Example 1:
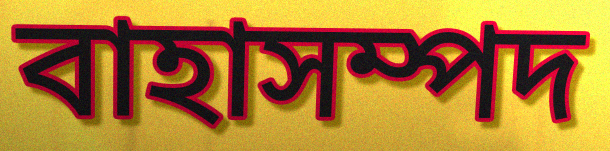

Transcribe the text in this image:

বাহাসম্পদ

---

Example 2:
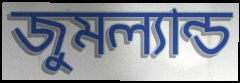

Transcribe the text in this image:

জুমল্যান্ড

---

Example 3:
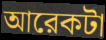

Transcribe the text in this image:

আরেকটা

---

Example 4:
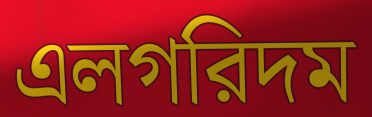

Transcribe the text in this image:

এলগরিদম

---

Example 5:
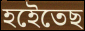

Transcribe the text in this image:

হইেতেছ